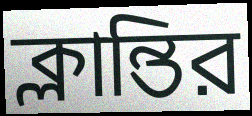
ক্লান্তির